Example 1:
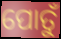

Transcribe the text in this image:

ପୋତୁଁ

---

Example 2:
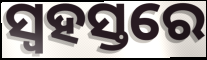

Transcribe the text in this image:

ସ୍ୱହସ୍ତରେ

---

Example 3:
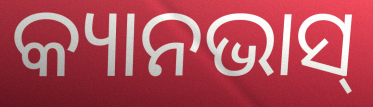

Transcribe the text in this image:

କ୍ୟାନଭାସ୍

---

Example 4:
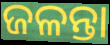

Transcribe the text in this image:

ଜଳନ୍ତା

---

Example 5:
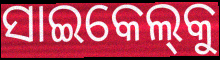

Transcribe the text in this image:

ସାଇକେଲ୍‌କୁ